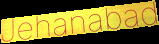
Jehanabad